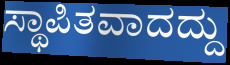
ಸ್ಥಾಪಿತವಾದದ್ದು